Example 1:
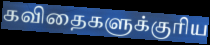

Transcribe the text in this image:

கவிதைகளுக்குரிய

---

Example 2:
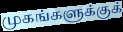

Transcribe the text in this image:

முகங்களுக்குக்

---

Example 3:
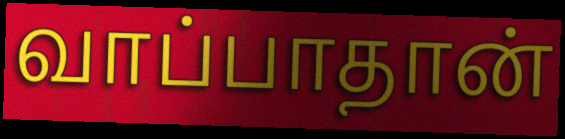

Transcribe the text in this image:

வாப்பாதான்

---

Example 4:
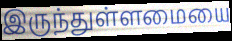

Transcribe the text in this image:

இருந்துள்ளமையை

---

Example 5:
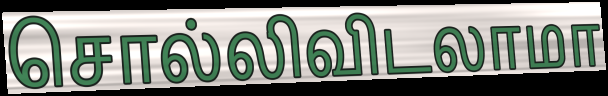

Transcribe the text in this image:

சொல்லிவிடலாமா